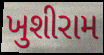
ખુશીરામ